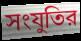
সংযুতির